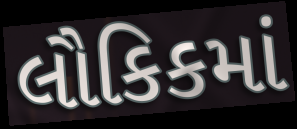
લૌકિકમાં